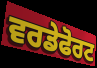
ਵਰਡੇਫੋਰਟ